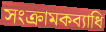
সংক্রামকব্যাধি